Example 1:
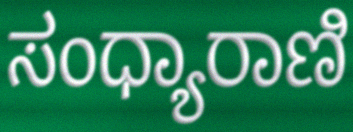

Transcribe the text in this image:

ಸಂಧ್ಯಾರಾಣಿ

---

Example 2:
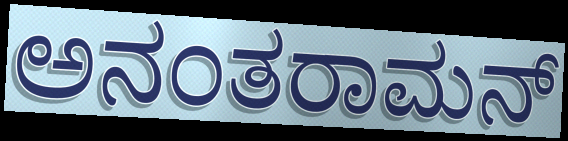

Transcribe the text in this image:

ಅನಂತರಾಮನ್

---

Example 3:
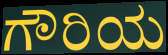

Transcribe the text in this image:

ಗೌರಿಯ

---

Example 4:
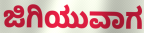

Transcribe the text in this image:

ಜಿಗಿಯುವಾಗ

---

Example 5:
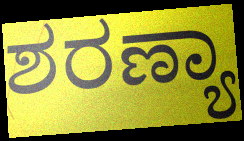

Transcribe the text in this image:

ಶರಣ್ಯಾ